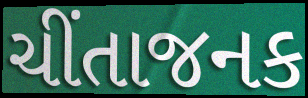
ચીંતાજનક